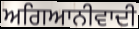
ਅਗਿਆਨੀਵਾਦੀ